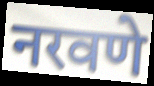
नरवणे